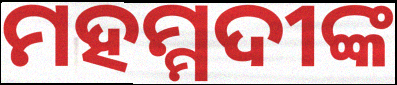
ମହମ୍ମଦୀଙ୍କ